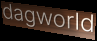
dagworld